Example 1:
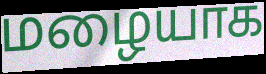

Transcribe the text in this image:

மழையாக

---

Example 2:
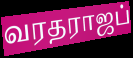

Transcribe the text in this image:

வரதராஜப்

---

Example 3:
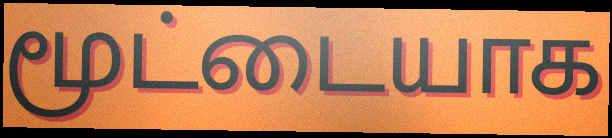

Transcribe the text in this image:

மூட்டையாக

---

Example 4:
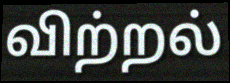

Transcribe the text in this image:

விற்றல்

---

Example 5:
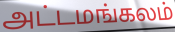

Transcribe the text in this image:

அட்டமங்கலம்